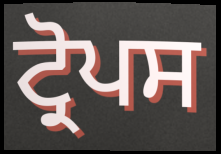
ਟ੍ਰੋਪਸ